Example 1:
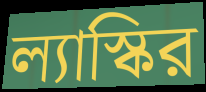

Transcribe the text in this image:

ল্যাস্কির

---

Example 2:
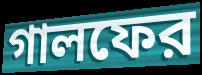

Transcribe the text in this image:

গালফের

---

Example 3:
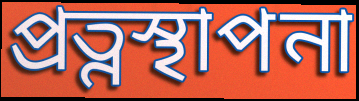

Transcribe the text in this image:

প্রত্নস্থাপনা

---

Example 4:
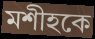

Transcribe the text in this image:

মশীহকে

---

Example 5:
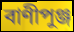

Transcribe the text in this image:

বাণীপুঞ্জ